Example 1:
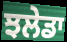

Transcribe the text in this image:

ਝਲੇਡਾ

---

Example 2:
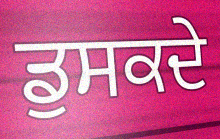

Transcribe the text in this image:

ਡੁਸਕਦੇ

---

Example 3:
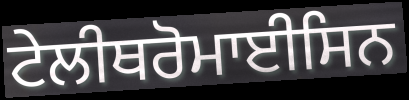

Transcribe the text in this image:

ਟੇਲੀਥਰੋਮਾਈਸਿਨ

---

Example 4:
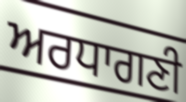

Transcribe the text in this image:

ਅਰਧਾਗਣੀ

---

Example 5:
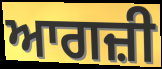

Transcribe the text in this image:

ਆਗਜ਼ੀ